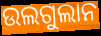
ଉଲଗୁଲାନ